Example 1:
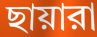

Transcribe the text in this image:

ছায়ারা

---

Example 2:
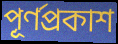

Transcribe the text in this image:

পূর্ণপ্রকাশ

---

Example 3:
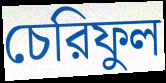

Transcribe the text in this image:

চেরিফুল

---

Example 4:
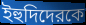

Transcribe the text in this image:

ইহুদিদেরকে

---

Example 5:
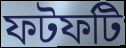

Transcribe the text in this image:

ফটফটি